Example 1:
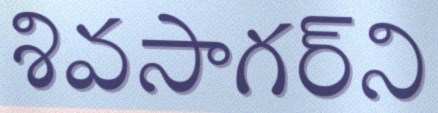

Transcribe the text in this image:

శివసాగర్‌ని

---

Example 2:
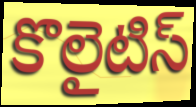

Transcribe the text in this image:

కొలైటిస్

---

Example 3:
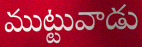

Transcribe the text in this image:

ముట్టువాడు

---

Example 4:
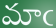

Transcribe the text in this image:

మాఁ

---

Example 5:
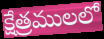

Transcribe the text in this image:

క్షేత్రములలో